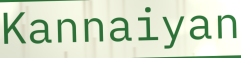
Kannaiyan